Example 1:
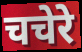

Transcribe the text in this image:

चचेरे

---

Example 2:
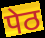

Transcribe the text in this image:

पेठ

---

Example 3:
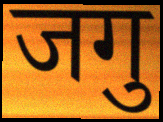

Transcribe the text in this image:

जगु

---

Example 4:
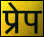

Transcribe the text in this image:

प्रेप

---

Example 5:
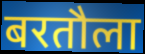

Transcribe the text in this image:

बरतौला